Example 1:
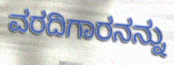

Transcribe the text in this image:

ವರದಿಗಾರನನ್ನು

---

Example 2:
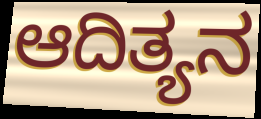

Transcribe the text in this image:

ಆದಿತ್ಯನ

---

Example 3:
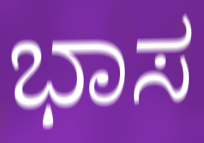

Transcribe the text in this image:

ಭಾಸ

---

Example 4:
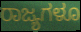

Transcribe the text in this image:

ರಾಜ್ಯಗಳೂ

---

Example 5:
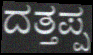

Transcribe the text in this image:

ದತ್ತಪ್ಪ